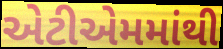
એટીએમમાંથી